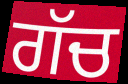
ਗੱਚ